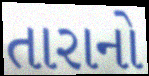
તારાનો